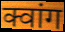
क्वांग